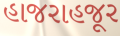
હાજરાહજૂર